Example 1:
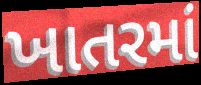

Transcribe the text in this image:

ખાતરમાં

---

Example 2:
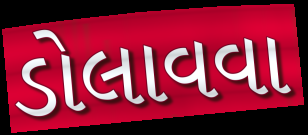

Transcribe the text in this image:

ડોલાવવા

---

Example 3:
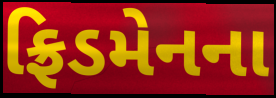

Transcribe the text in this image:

ફ્રિડમેનના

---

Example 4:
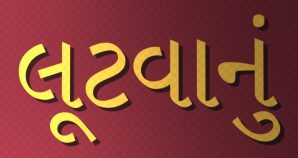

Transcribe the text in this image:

લૂટવાનું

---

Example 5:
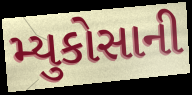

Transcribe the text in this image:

મ્યુકોસાની